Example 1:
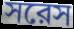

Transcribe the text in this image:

সরেস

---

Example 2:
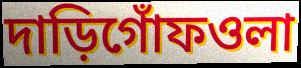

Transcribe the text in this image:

দাড়িগোঁফওলা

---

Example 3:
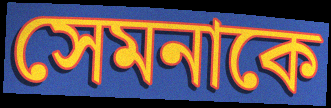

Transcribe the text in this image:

সেমনাকে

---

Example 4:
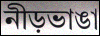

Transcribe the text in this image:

নীড়ভাঙা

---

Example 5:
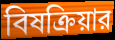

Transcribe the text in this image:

বিষক্রিয়ার